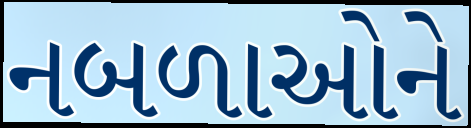
નબળાઓને